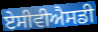
ਏਸੀਵੀਐਸਡੀ